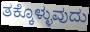
ತಕ್ಕೊಳ್ಳುವುದು